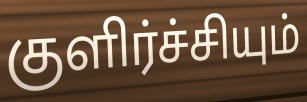
குளிர்ச்சியும்